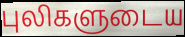
புலிகளுடைய